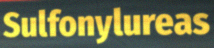
Sulfonylureas